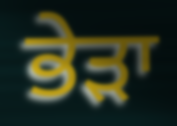
ਭੇੜਾ